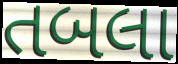
તબલા